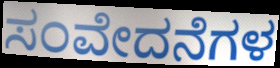
ಸಂವೇದನೆಗಳ